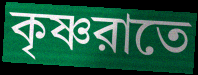
কৃষ্ণরাতে